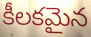
కీలకమైన